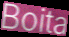
Boita